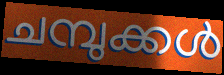
ചമ്പുക്കൾ